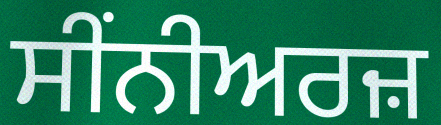
ਸੀਂਨੀਅਰਜ਼